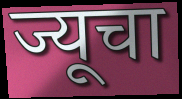
ज्यूचा